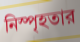
নিস্পৃহতার